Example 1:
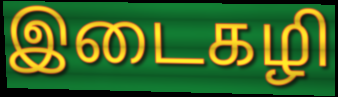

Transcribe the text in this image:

இடைகழி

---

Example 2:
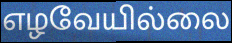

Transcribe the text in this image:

எழவேயில்லை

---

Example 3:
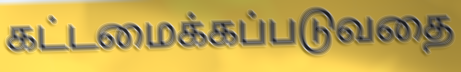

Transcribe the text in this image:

கட்டமைக்கப்படுவதை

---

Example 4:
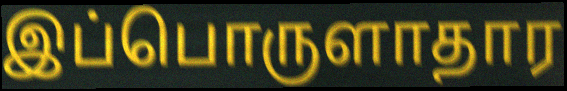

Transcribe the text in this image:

இப்பொருளாதார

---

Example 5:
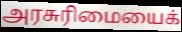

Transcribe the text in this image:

அரசுரிமையைக்